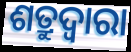
ଶତ୍ରୁଦ୍ଵାରା